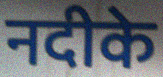
नदीके